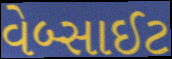
વેબ્સાઈટ